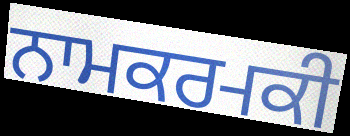
ਨਾਮਕਰ੍ਮਕੀ